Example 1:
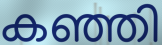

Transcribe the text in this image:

കഞ്ഞി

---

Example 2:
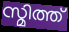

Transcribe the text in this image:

സ്മിത്ത്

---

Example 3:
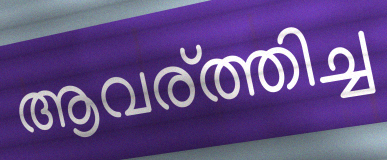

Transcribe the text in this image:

ആവര്ത്തിച്ച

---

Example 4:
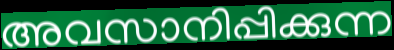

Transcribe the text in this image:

അവസാനിപ്പിക്കുന്ന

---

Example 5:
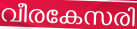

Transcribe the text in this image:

വീരകേസരി